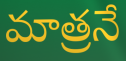
మాత్రనే